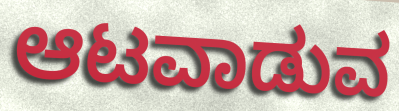
ಆಟವಾಡುವ